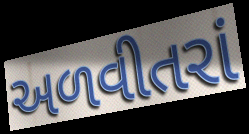
અળવીતરાં